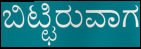
ಬಿಟ್ಟಿರುವಾಗ